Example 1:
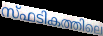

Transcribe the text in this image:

സ്ഫടികത്തിലെ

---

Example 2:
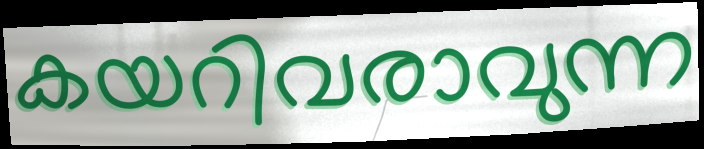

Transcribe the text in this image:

കയറിവരാവുന്ന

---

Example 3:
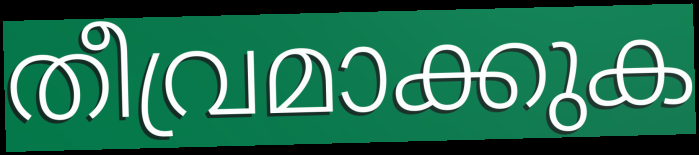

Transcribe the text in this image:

തീവ്രമാക്കുക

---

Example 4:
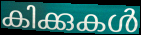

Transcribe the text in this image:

കിക്കുകൾ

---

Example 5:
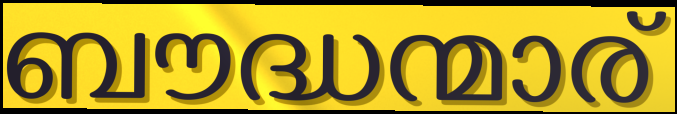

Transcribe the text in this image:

ബൗദ്ധന്മാര്